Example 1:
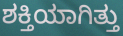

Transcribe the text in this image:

ಶಕ್ತಿಯಾಗಿತ್ತು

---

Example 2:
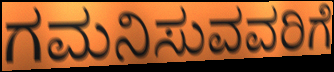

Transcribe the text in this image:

ಗಮನಿಸುವವರಿಗೆ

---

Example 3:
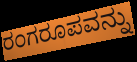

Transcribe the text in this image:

ರಂಗರೂಪವನ್ನು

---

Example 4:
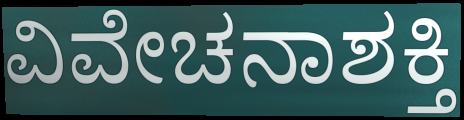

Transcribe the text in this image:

ವಿವೇಚನಾಶಕ್ತಿ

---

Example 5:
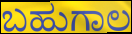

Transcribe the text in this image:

ಬಹುಗಾಲ